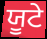
ਯੂਟੇ